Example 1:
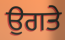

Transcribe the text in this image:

ਉਗਤੇ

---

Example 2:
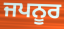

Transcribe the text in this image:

ਜਪਨੂਰ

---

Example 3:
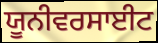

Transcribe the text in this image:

ਯੂਨੀਵਰਸਾਈਟ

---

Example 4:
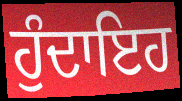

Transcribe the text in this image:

ਹੁੰਦਾਇਹ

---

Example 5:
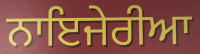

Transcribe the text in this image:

ਨਾਇਜੇਰੀਆ